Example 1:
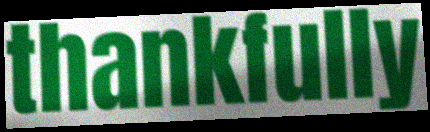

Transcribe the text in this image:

thankfully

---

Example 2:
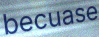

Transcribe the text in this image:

becuase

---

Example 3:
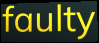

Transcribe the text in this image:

faulty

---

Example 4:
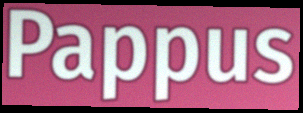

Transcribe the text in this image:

Pappus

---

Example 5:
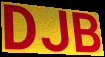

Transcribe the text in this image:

DJB